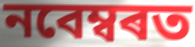
নবেম্বৰত